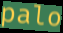
palo